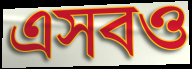
এসবও